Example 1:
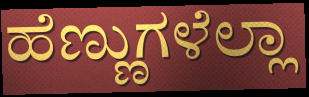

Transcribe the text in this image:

ಹೆಣ್ಣುಗಳೆಲ್ಲಾ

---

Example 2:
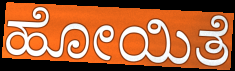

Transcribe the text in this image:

ಹೋಯಿತೆ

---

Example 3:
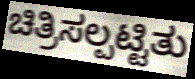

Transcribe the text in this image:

ಚಿತ್ರಿಸಲ್ಪಟ್ಟಿತು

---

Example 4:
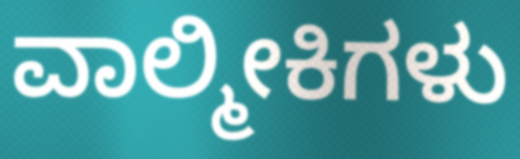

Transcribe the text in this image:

ವಾಲ್ಮೀಕಿಗಳು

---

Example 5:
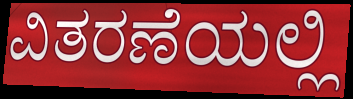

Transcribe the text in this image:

ವಿತರಣೆಯಲ್ಲಿ